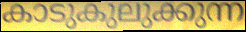
കാടുകുലുക്കുന്ന